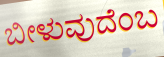
ಬೀಳುವುದೆಂಬ